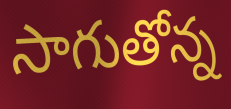
సాగుతోన్న